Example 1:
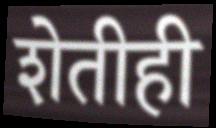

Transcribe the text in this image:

शेतीही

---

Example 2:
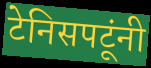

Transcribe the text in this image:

टेनिसपटूंनी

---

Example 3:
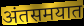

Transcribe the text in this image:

अंतसमयात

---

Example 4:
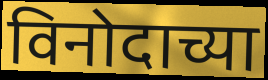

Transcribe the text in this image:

विनोदाच्या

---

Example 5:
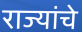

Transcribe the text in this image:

राज्यांचे